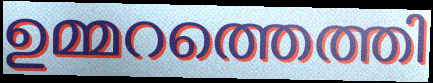
ഉമ്മറത്തെത്തി